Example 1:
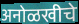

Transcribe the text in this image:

अनोळखीचे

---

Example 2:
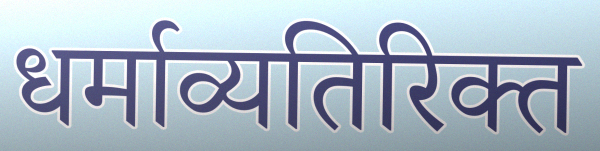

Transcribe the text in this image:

धर्माव्यतिरिक्त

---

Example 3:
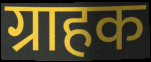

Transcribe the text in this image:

ग्राहक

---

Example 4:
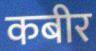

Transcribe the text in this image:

कबीर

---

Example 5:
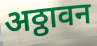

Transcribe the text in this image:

अठ्ठावन